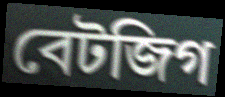
বেটজিগ